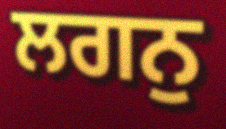
ਲਗਨੁ